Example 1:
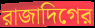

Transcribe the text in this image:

রাজাদিগের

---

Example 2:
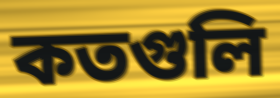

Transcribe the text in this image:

কতগুলি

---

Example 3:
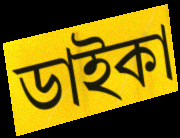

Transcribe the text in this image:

ডাইকা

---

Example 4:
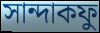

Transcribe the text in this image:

সান্দাকফু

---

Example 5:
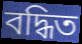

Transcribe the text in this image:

বদ্ধিত